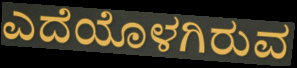
ಎದೆಯೊಳಗಿರುವ